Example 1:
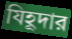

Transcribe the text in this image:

যিহূদার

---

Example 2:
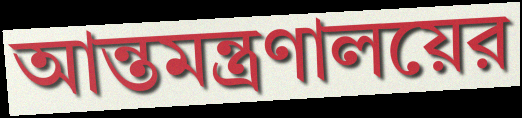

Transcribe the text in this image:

আন্তমন্ত্রণালয়ের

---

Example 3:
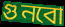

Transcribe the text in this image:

গুনবো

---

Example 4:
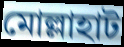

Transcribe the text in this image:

মোল্লাহাট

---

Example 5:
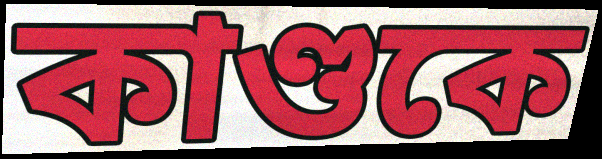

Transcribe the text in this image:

কাণ্ডকে